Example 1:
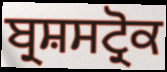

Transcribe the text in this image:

ਬ੍ਰਸ਼ਸਟ੍ਰੋਕ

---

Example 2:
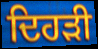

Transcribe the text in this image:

ਦਿਹੜੀ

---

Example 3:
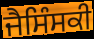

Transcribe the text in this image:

ਜੈਸਿੰਸਕੀ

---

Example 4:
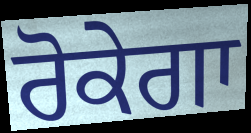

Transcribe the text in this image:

ਰੋਕੇਗਾ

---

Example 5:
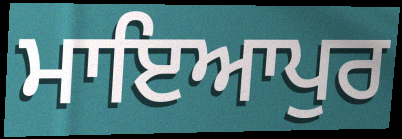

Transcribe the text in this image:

ਮਾਇਆਪੁਰ